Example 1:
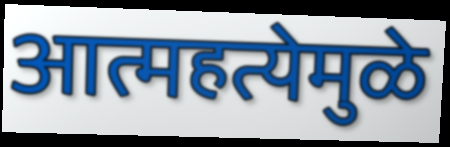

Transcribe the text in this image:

आत्महत्येमुळे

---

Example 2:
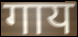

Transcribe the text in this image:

गाय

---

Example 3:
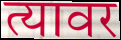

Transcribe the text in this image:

त्‍यावर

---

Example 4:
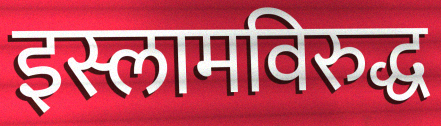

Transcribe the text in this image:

इस्लामविरुद्ध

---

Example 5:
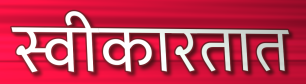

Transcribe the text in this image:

स्वीकारतात